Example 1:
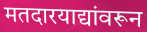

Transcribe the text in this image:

मतदारयाद्यांवरून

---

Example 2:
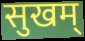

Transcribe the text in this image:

सुखम्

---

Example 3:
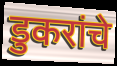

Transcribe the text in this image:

डुकरांचे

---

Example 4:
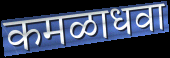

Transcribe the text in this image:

कमळाधवा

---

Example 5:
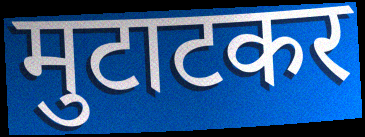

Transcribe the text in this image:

मुटाटकर